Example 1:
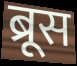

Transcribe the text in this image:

ब्रूस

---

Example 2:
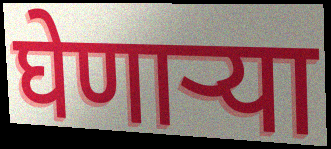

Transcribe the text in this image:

घेणाऱ्या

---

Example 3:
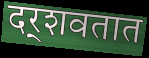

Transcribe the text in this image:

दर्शवतात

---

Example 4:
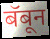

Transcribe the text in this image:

बॅबून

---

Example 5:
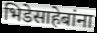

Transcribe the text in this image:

भिडेसाहेबांना